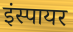
इंस्पायर